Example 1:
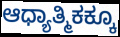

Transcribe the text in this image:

ಆಧ್ಯಾತ್ಮಿಕಕ್ಕೂ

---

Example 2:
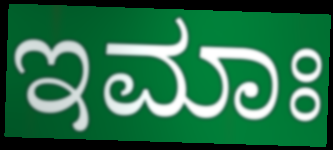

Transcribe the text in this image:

ಇಮಾಃ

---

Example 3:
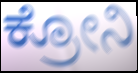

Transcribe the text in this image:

ಕ್ರೋನಿ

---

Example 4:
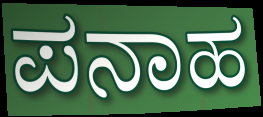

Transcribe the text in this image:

ಪನಾಹ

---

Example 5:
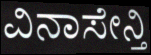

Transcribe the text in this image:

ವಿನಾಸೇನ್ತಿ